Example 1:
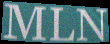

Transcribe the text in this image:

MLN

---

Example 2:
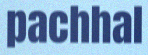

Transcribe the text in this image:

pachhal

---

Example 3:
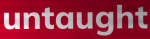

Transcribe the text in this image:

untaught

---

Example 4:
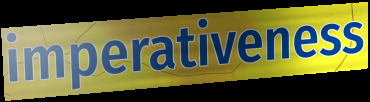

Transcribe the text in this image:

imperativeness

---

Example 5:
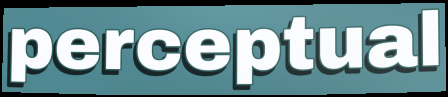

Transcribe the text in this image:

perceptual